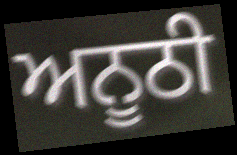
ਅਨੂਠੀ